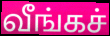
வீங்கச்